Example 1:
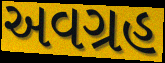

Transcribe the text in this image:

અવગ્રહ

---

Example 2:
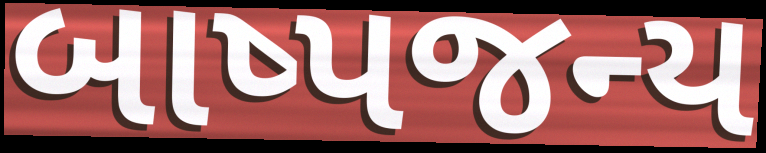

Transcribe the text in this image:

બાષ્પજન્ય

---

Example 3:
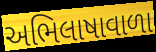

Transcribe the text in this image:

અભિલાષાવાળા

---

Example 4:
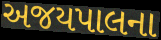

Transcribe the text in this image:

અજયપાલના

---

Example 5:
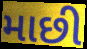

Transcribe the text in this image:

માછી